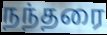
நந்தரை